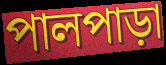
পালপাড়া